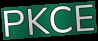
PKCE